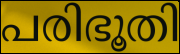
പരിഭൂതി